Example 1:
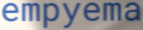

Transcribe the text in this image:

empyema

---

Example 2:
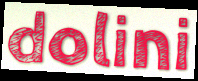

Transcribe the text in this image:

dolini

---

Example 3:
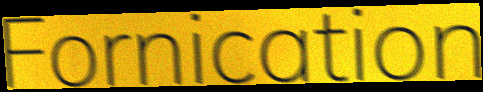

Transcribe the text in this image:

Fornication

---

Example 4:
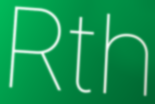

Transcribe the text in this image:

Rth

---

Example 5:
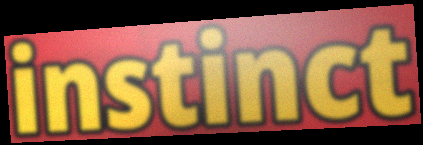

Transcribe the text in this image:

instinct